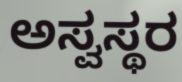
ಅಸ್ವಸ್ಥರ